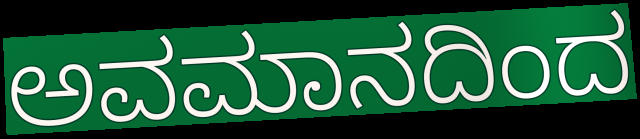
ಅವಮಾನದಿಂದ